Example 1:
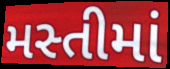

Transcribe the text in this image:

મસ્તીમાં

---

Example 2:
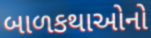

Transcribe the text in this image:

બાળકથાઓનો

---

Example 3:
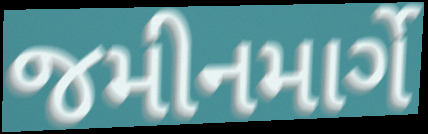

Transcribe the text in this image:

જમીનમાર્ગે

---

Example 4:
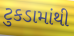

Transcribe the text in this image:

ટુકડામાંથી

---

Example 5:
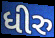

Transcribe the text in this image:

ધીરુ